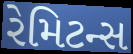
રેમિટન્સ